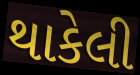
થાકેલી